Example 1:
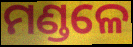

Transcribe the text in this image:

ମଣ୍ଡଳେ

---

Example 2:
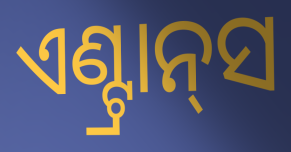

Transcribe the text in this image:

ଏଣ୍ଟ୍ରାନ୍‌ସ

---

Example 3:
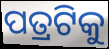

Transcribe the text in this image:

ପତ୍ରଟିକୁ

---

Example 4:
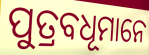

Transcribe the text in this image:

ପୁତ୍ରବଧୂମାନେ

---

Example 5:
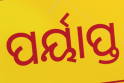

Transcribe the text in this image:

ପର୍ୟାପ୍ତ